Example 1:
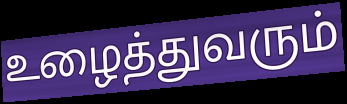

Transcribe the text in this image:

உழைத்துவரும்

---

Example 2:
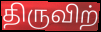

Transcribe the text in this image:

திருவிற்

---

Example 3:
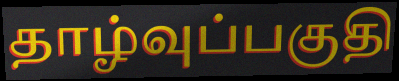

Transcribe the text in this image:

தாழ்வுப்பகுதி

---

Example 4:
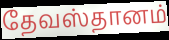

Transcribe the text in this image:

தேவஸ்தானம்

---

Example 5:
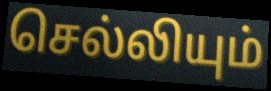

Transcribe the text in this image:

செல்லியும்